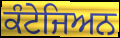
ਕੰਟੇਜਿਅਨ